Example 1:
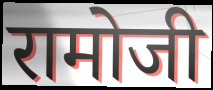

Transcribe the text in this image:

रामोजी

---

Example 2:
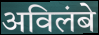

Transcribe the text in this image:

अविलंबे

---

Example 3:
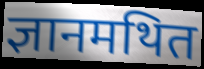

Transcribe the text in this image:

ज्ञानमथित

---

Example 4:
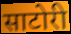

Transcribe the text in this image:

साटोरी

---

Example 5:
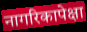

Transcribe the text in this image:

नागरिकापेक्षा